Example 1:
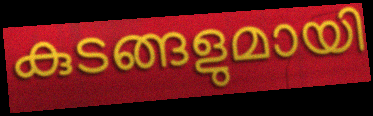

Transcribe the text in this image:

കുടങ്ങളുമായി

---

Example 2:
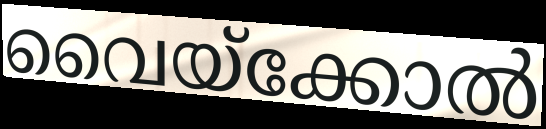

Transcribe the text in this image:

വൈയ്ക്കോൽ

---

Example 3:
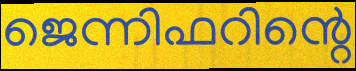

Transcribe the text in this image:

ജെന്നിഫറിന്റെ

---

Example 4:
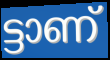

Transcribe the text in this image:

ട്ടാണ്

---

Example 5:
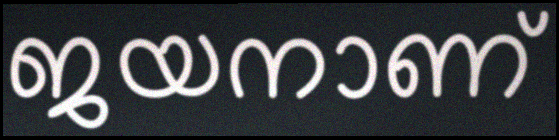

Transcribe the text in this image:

ജയനാണ്